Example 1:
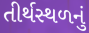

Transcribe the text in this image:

તીર્થસ્થળનું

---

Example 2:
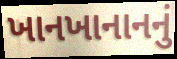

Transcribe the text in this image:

ખાનખાનાનનું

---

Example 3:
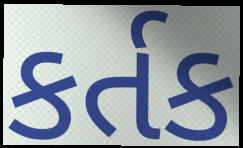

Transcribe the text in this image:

કર્તક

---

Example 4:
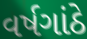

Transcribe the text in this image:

વર્ષગાંઠે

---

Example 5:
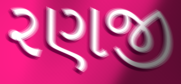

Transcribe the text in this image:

રણજી